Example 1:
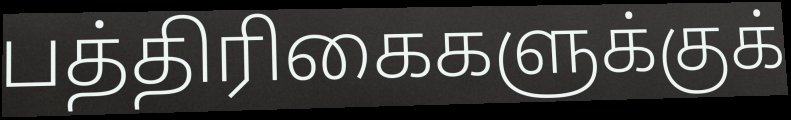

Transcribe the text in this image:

பத்திரிகைகளுக்குக்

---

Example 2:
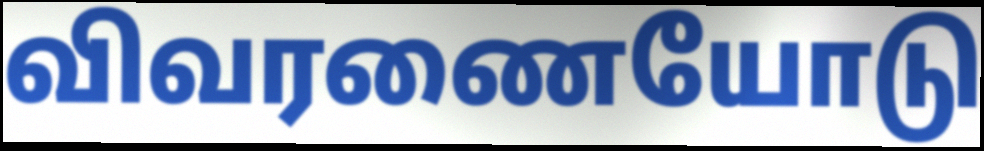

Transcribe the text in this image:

விவரணையோடு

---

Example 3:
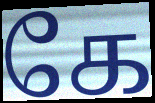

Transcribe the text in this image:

கே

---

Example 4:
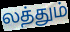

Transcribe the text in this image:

லத்தும்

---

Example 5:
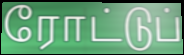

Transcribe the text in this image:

ரோட்டுப்